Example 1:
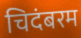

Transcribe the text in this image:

चिदंबरम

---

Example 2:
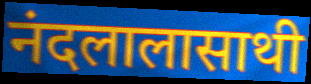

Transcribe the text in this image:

नंदलालासाथी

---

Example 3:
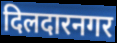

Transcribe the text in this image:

दिलदारनगर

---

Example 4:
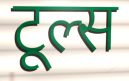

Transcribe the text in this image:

टूल्स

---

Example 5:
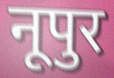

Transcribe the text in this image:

नूपुर